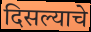
दिसल्याचे